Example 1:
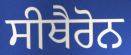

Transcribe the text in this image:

ਸੀਥੈਰੋਨ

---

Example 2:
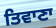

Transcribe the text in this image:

ਤਿਵਾਣਾ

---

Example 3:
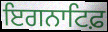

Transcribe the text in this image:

ਇਗਨਾਟਿਫ਼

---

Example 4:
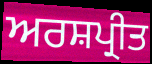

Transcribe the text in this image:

ਅਰਸ਼ਪ੍ਰੀਤ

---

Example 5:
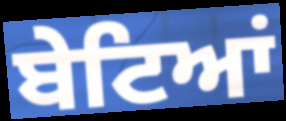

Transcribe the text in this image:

ਬੇਟਿਆਂ